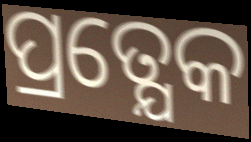
ପ୍ରତ୍ଯେକ